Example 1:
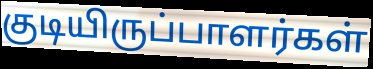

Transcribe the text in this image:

குடியிருப்பாளர்கள்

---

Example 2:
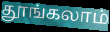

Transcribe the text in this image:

தூங்கலாம்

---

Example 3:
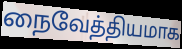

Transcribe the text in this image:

நைவேத்தியமாக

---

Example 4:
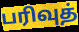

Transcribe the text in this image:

பரிவுத்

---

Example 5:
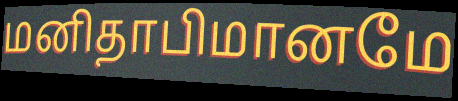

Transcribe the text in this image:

மனிதாபிமானமே